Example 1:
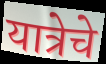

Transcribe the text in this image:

यात्रेचे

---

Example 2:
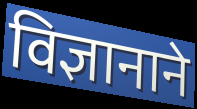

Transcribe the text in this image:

विज्ञानाने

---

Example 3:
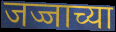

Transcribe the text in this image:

जज्जाच्या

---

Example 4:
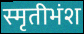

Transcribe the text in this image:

स्मृतीभंश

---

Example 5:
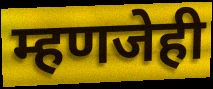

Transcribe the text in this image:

म्हणजेही